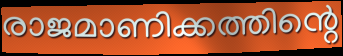
രാജമാണിക്കത്തിന്റെ